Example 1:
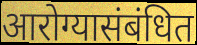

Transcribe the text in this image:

आरोग्यासंबंधित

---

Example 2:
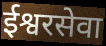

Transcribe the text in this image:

ईश्वरसेवा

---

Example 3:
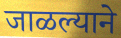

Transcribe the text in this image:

जाळल्याने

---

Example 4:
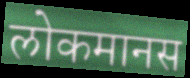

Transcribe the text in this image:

लोकमानस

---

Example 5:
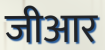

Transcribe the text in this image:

जीआर